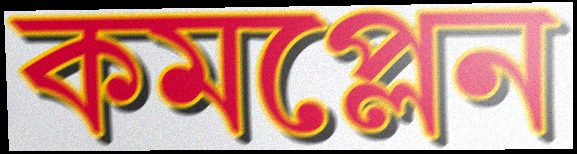
কমপ্লেন